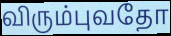
விரும்புவதோ